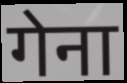
गेना